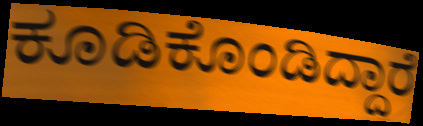
ಕೂಡಿಕೊಂಡಿದ್ದಾರೆ